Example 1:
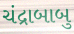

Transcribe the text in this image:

ચંદ્રાબાબુ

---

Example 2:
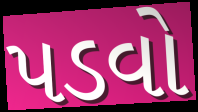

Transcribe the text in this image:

પડવો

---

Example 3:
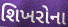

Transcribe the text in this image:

શિખરોના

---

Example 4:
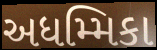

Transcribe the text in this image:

અધમ્મિકા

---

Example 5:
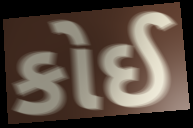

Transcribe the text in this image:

કોઈ